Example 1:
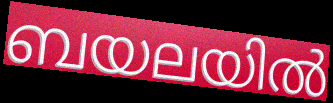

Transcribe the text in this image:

ബയലയിൽ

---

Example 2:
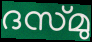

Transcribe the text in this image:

ദസ്മു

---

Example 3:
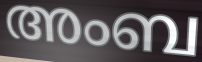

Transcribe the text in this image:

അംബ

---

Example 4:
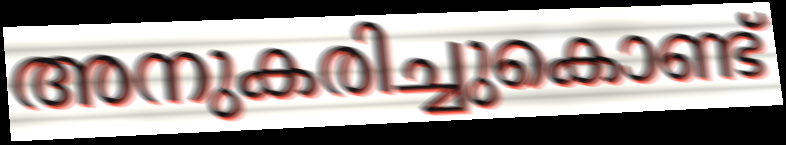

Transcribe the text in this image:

അനുകരിച്ചുകൊണ്ട്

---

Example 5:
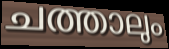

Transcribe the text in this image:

ചത്താലും